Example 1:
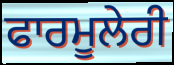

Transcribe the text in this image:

ਫਾਰਮੂਲੇਰੀ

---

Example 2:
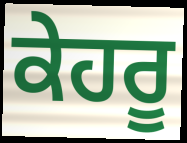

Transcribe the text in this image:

ਕੇਹਰੂ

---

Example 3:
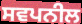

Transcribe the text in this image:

ਸਵਪਨੀਲ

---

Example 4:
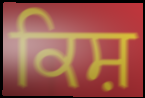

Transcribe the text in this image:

ਕਿਸ਼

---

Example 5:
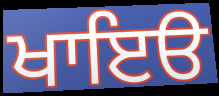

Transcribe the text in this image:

ਖਾਇੳ